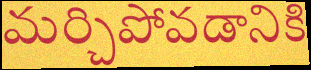
మర్చిపోవడానికి